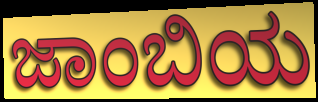
ಜಾಂಬಿಯ